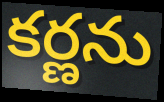
కర్ణను